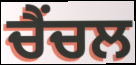
ਚੈਂਚਲ